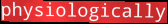
physiologically